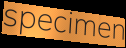
specimen